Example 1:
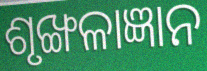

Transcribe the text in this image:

ଶୃଙ୍ଖଳାଜ୍ଞାନ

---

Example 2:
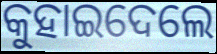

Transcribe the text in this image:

କୁହାଇଦେଲେ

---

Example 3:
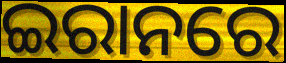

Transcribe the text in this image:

ଇରାନରେ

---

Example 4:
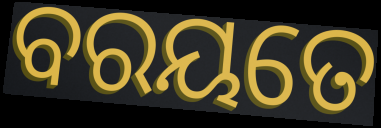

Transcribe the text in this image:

ବରୟତେ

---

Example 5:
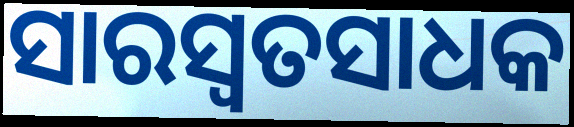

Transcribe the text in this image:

ସାରସ୍ଵତସାଧକ